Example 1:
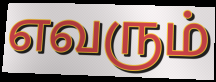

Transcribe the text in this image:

எவரும்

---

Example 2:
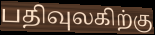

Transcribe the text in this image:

பதிவுலகிற்கு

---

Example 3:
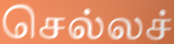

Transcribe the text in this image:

செல்லச்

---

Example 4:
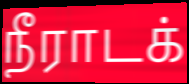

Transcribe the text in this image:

நீராடக்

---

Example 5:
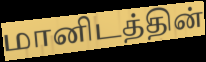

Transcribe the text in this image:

மானிடத்தின்